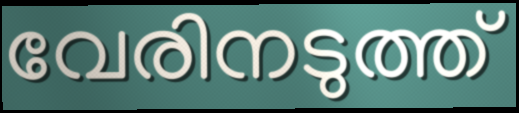
വേരിനടുത്ത്